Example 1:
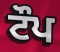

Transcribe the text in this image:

ਟੌਪ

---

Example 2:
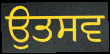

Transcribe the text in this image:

ਉਤਸਵ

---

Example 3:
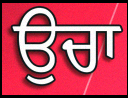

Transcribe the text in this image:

ਉਚਾ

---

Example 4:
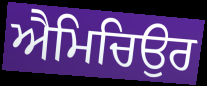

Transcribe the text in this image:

ਐਮਿਚਿਉਰ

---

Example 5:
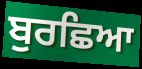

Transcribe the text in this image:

ਬੁਰਛਿਆ